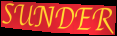
SUNDER